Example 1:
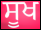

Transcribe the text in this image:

ਸੂਖ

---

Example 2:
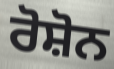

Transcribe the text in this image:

ਰੋਸ਼ੋਨ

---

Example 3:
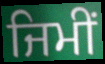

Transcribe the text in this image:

ਜਿਮੀਂ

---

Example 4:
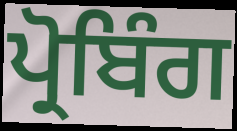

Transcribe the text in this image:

ਪ੍ਰੋਬਿੰਗ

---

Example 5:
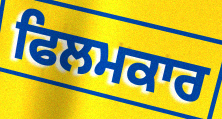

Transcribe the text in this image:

ਫਿਲਮਕਾਰ